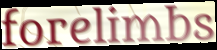
forelimbs